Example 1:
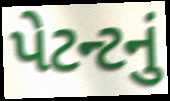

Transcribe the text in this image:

પેટન્ટનું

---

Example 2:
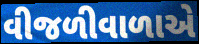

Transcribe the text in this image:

વીજળીવાળાએ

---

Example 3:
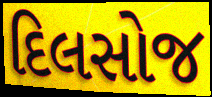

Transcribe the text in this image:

દિલસોજ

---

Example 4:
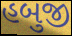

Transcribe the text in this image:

હબુજી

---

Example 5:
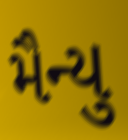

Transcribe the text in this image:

મૈન્યુ